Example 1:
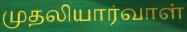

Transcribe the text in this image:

முதலியார்வாள்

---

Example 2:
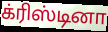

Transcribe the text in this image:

க்ரிஸ்டினா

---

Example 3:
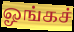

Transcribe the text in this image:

ஓங்கச்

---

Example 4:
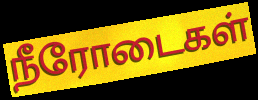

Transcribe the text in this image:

நீரோடைகள்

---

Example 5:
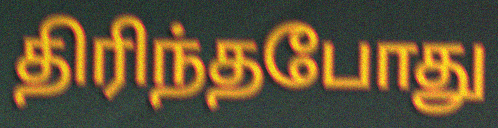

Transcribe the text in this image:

திரிந்தபோது